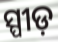
ସ୍ପୀଡ଼